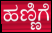
ಹಣ್ಣಿಗೆ